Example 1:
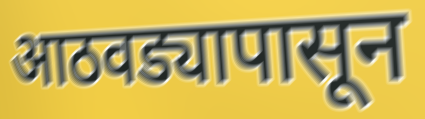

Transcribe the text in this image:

आठवड्यापासून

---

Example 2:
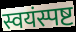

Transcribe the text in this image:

स्वयंस्पष्ट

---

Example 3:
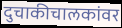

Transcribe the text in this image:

दुचाकीचालकांवर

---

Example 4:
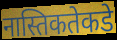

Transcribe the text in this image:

नास्तिकतेकडे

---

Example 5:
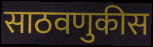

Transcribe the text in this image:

साठवणुकीस